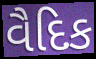
વૈદિક